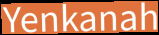
Yenkanah